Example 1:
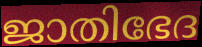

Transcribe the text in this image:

ജാതിഭേദ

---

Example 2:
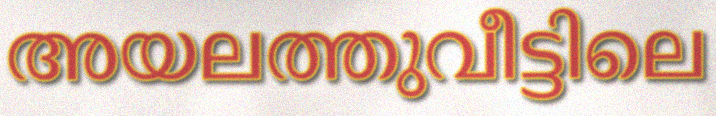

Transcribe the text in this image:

അയലത്തുവീട്ടിലെ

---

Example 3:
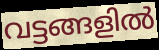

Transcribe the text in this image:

വട്ടങ്ങളിൽ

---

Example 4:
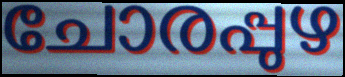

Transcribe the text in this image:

ചോരപ്പുഴ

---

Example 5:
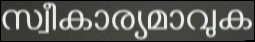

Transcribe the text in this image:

സ്വീകാര്യമാവുക